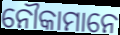
ନୌକାମାନେ